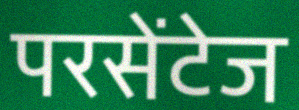
परसेंटेज